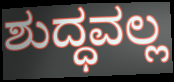
ಶುದ್ಧವಲ್ಲ